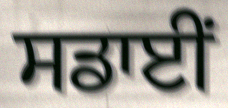
ਸਡਾਈਂ